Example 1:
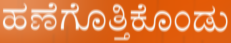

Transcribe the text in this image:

ಹಣೆಗೊತ್ತಿಕೊಂಡು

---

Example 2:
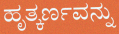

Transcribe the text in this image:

ಹೃತ್ಕರ್ಣವನ್ನು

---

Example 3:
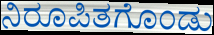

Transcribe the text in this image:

ನಿರೂಪಿತಗೊಂಡು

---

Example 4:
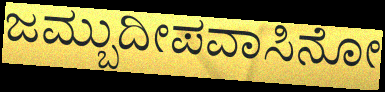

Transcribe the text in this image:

ಜಮ್ಬುದೀಪವಾಸಿನೋ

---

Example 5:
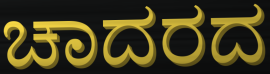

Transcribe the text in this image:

ಚಾದರದ